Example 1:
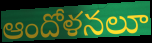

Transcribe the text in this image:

ఆందోళనలూ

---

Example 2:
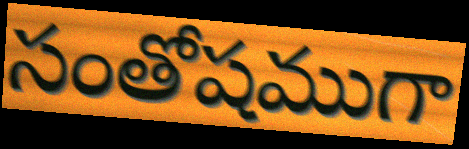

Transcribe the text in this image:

సంతోషముగా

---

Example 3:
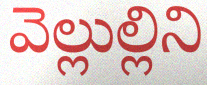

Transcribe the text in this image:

వెల్లుల్లిని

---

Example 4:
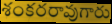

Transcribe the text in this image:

శంకరరావుగారు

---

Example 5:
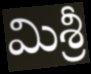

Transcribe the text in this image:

మిశ్రీ